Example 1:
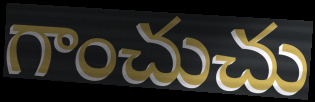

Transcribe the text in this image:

గాంచుచు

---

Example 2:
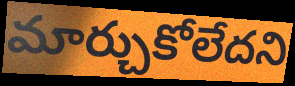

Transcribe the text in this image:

మార్చుకోలేదని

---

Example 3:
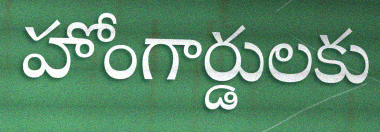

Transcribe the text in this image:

హోంగార్డులకు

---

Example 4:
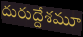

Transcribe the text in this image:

దురుద్దేశమూ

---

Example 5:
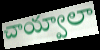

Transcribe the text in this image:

చాయ్వాలా